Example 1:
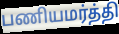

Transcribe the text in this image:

பணியமர்த்தி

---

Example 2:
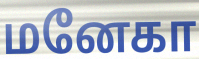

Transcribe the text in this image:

மனேகா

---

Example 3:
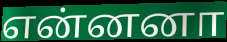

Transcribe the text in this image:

என்னனா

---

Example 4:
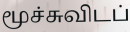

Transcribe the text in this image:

மூச்சுவிடப்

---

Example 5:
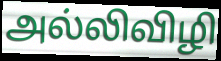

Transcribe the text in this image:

அல்லிவிழி